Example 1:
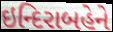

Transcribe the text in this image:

ઇન્દિરાબહેને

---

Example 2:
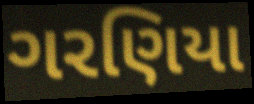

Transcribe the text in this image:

ગરણિયા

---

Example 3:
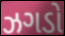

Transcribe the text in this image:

ઝગડો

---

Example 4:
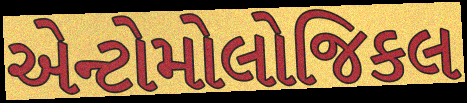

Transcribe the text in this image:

એન્ટોમોલોજિકલ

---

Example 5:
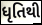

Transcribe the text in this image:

ધૃતિથી